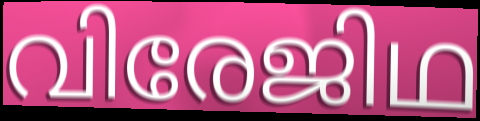
വിരേജിഥ